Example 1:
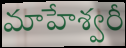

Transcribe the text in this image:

మాహేశ్వరీ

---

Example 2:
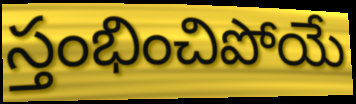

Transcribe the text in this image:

స్తంభించిపోయే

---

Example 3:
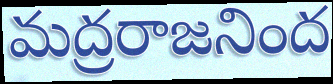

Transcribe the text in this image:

మద్రరాజనింద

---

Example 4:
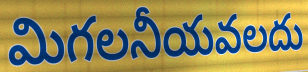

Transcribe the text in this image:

మిగలనీయవలదు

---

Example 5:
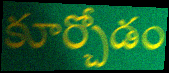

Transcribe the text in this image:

కూర్చోడం